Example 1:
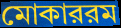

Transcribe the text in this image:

মোকাররম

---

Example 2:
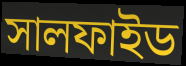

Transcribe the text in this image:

সালফাইড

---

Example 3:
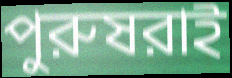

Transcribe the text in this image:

পুরুষরাই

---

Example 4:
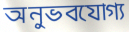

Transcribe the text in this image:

অনুভবযোগ্য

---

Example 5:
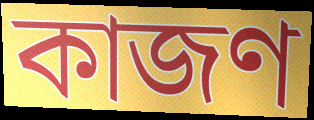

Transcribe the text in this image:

কাজণ